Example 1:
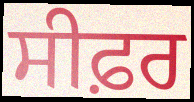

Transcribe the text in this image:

ਸੀਫ਼ਰ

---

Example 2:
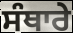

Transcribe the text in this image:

ਸੰਥਾਰੇ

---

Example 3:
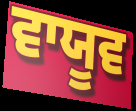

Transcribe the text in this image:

ਵਾਯੂਵ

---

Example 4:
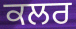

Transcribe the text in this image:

ਕਲਰ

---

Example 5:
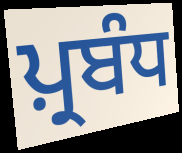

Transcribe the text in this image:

ਪ਼੍ਰਬੰਧ